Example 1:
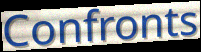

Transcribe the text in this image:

Confronts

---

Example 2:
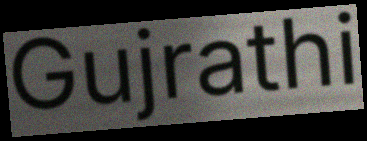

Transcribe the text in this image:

Gujrathi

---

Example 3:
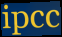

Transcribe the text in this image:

ipcc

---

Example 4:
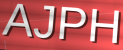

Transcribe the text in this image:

AJPH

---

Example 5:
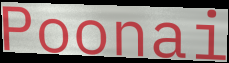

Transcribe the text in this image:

Poonai